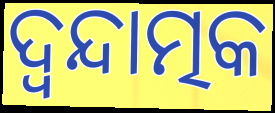
ଦ୍ୱନ୍ଦାତ୍ମକ